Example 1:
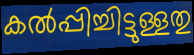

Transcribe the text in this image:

കൽപ്പിച്ചിട്ടുള്ളതു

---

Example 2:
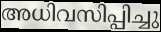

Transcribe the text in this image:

അധിവസിപ്പിച്ചു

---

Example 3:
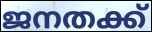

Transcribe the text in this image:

ജനതക്ക്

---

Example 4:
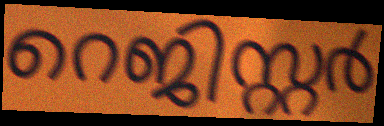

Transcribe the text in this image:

റെജിസ്റ്റർ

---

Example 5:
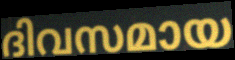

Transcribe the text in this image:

ദിവസമായ